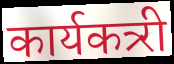
कार्यकत्र्री